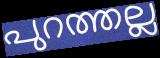
പുറത്തല്ല